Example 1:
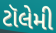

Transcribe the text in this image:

ટૉલેમી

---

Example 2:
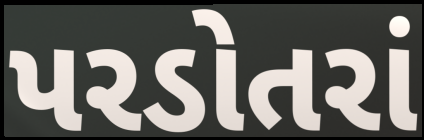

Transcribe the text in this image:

પરડોતરાં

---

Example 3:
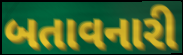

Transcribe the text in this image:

બતાવનારી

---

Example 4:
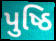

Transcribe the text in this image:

પુષ્ઠિ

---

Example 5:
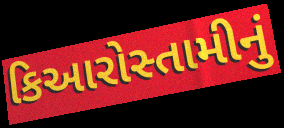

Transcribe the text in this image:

કિઆરોસ્તામીનું